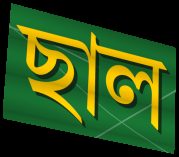
ছাল